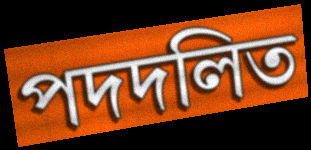
পদদলিত